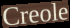
Creole